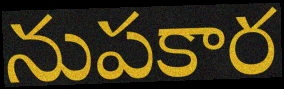
నుపకార